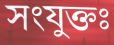
সংযুক্তঃ